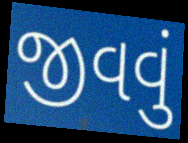
જીવવું